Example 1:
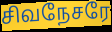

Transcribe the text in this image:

சிவநேசரே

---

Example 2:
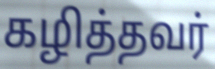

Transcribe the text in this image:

கழித்தவர்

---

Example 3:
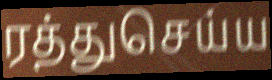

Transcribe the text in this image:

ரத்துசெய்ய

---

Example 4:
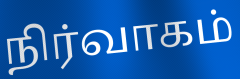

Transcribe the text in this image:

நிர்வாகம்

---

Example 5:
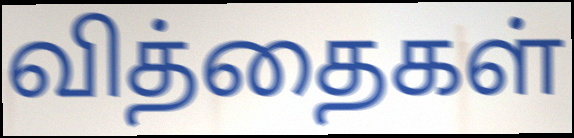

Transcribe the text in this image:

வித்தைகள்